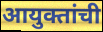
आयुक्तांची